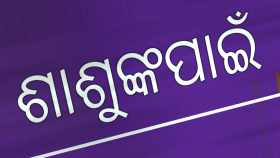
ଶାଶୁଙ୍କପାଇଁ